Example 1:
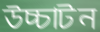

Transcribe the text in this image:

উচ্চাটন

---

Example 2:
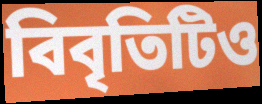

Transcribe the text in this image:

বিবৃতিটিও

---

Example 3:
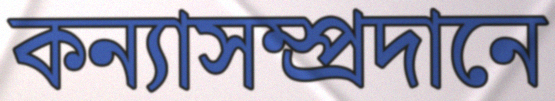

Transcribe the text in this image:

কন্যাসম্প্রদানে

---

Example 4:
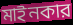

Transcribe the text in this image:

মাইনকার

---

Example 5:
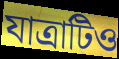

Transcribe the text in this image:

যাত্রাটিও